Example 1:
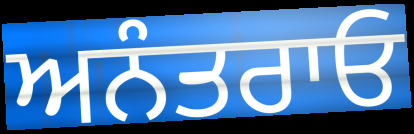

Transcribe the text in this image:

ਅਨੰਤਰਾਓ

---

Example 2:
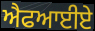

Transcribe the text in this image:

ਐਫਆਈਏ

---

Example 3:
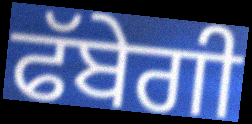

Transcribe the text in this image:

ਫੱਬੇਗੀ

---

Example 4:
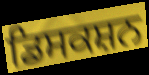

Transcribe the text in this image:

ਡਿਸਕਸ਼ਨ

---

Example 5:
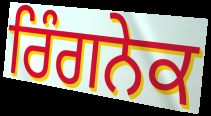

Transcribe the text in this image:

ਰਿੰਗਨੇਕ